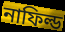
নাফিল্ড